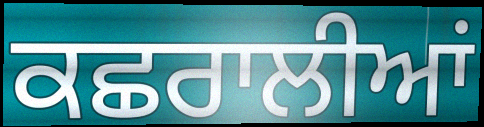
ਕਛਰਾਲੀਆਂ